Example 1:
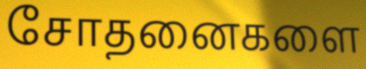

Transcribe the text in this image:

சோதனைகளை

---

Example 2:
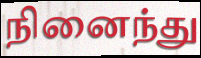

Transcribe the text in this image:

நினைந்து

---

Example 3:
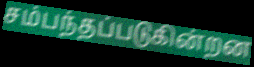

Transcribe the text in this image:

சம்பந்தப்படுகின்றன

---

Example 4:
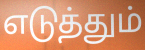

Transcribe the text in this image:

எடுத்தும்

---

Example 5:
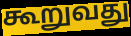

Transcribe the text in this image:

கூறுவது